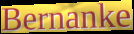
Bernanke